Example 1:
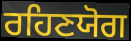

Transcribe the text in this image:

ਰਹਿਣਯੋਗ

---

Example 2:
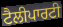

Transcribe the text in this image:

ਟੈਲੀਪਾਰਟੀ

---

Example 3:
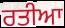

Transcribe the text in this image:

ਰਤੀਆ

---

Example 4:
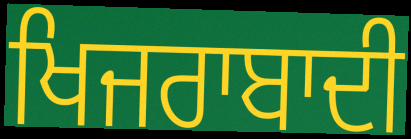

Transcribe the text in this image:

ਖਿਜਰਾਬਾਦੀ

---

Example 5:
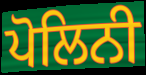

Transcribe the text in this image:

ਪੋਲਿਨੀ